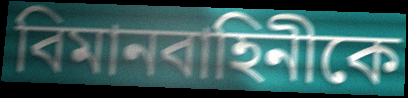
বিমানবাহিনীকে